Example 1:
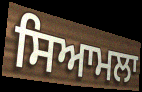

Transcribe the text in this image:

ਸਿਆਮਲਾ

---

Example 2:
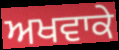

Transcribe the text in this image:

ਅਖਵਾਕੇ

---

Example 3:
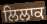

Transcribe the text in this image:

ਲਿਲਾਕ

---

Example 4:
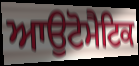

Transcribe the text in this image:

ਆਉਟੋਮੈਟਿਕ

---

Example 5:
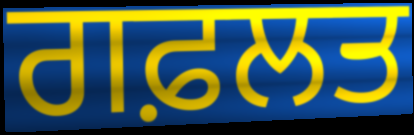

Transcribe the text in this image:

ਗਫ਼ਲਤ